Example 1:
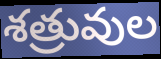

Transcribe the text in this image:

శత్రువుల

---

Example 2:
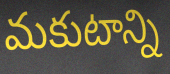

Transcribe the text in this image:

మకుటాన్ని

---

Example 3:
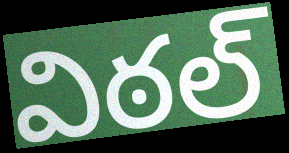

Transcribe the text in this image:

విఠల్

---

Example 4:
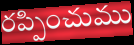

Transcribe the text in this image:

రప్పించుము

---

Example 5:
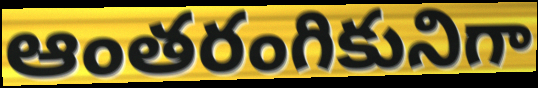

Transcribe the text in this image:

ఆంతరంగికునిగా